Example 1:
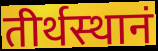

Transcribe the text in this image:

तीर्थस्थानं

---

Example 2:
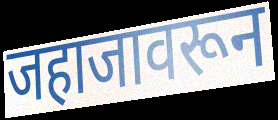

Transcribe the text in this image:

जहाजावरून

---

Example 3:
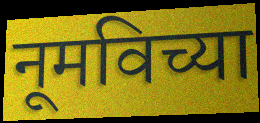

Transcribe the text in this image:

नूमविच्या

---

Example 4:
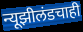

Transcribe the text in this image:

न्यूझीलंडचाही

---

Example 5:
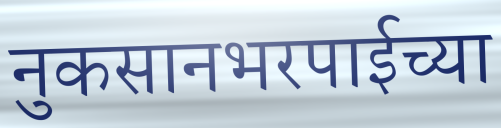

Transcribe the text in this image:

नुकसानभरपाईच्या